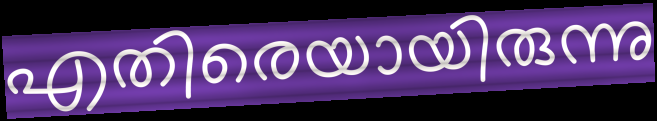
എതിരെയായിരുന്നു